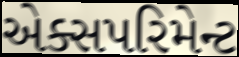
એક્સપરિમેન્ટ